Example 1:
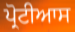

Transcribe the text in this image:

ਪ੍ਰੋਟੀਆਸ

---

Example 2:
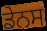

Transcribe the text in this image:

ਡੇਨਸ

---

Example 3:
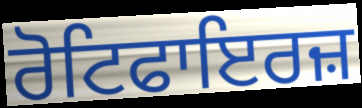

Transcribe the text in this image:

ਰੋਟਿਫਾਇਰਜ਼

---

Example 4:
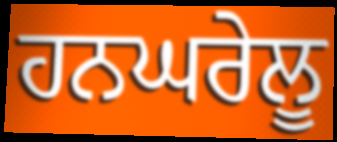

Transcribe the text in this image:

ਹਨਘਰੇਲੂ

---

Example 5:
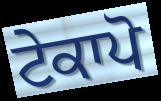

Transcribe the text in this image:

ਟੇਕਾਪੋ